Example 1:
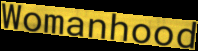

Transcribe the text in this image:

Womanhood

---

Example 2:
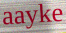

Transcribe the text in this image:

aayke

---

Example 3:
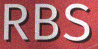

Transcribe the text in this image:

RBS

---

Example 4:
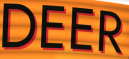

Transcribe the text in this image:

DEER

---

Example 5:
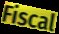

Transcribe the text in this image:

Fiscal